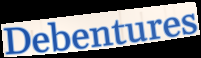
Debentures